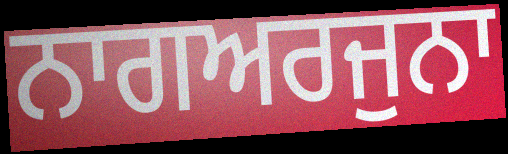
ਨਾਗਅਰਜੁਨਾ